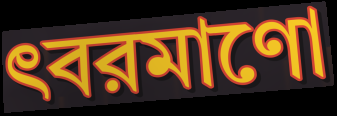
ৎবরমাণো